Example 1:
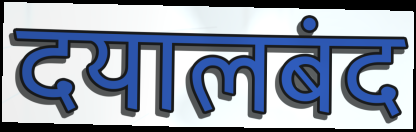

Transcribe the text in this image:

दयालबंद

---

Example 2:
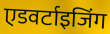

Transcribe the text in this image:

एडवर्टाइजिंग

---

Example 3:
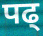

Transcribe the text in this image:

पढ्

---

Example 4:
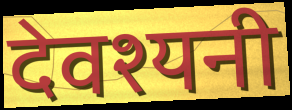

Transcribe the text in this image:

देवश्यनी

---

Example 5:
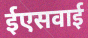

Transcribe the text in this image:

ईएसवाई